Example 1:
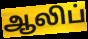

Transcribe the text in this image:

ஆலிப்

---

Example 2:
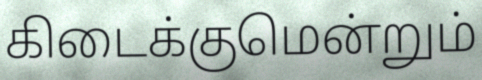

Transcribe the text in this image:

கிடைக்குமென்றும்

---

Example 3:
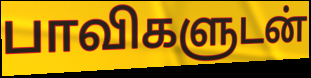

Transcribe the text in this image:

பாவிகளுடன்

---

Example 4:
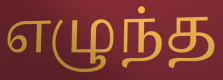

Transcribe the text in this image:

எழுந்த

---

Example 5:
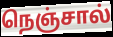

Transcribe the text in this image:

நெஞ்சால்